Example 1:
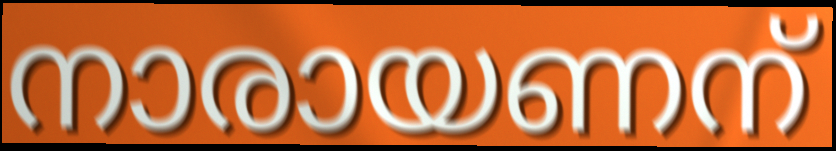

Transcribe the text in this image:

നാരായണന്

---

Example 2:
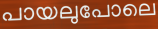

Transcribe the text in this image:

പായലുപോലെ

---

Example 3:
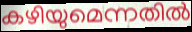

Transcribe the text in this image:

കഴിയുമെന്നതിൽ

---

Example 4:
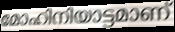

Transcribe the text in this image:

മോഹിനിയാട്ടമാണ്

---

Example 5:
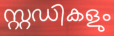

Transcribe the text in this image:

സ്റ്റഡികളും